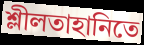
শ্লীলতাহানিতে